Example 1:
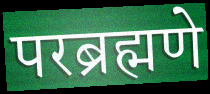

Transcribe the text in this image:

परब्रह्मणे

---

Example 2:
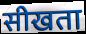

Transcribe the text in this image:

सीखता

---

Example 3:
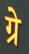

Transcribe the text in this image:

ग्रे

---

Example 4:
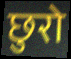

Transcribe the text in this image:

छुरो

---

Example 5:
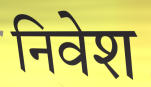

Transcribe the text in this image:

निवेश